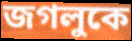
জগলুকে